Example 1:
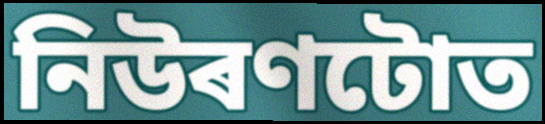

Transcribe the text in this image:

নিউৰণটোত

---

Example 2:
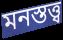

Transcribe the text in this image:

মনস্তত্ত্ব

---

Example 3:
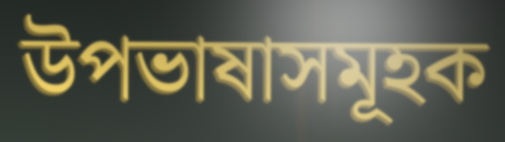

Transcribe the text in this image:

উপভাষাসমূহক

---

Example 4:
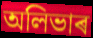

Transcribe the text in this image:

অলিভাৰ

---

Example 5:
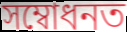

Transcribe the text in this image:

সম্বোধনত